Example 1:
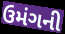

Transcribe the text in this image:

ઉમંગની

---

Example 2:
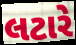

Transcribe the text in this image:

લટારે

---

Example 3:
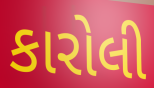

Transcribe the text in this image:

કારોલી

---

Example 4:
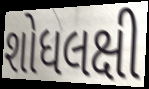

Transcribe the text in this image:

શોધલક્ષી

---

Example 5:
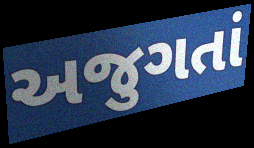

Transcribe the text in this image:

અજુગતાં